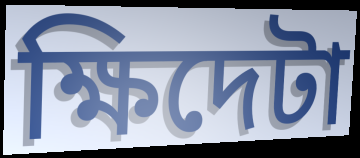
ক্ষিদেটা